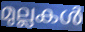
മുല്ലകൾ